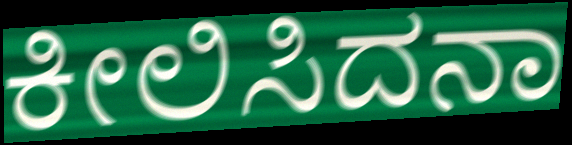
ಕೀಲಿಸಿದನಾ